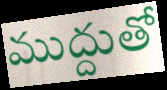
ముద్దుతో